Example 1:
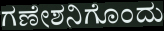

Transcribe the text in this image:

ಗಣೇಶನಿಗೊಂದು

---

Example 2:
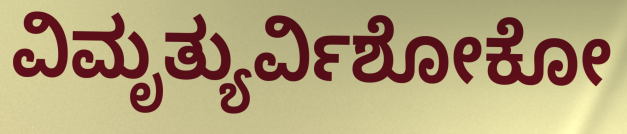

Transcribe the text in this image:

ವಿಮೃತ್ಯುರ್ವಿಶೋಕೋ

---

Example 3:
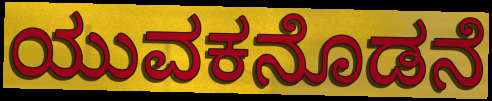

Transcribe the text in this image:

ಯುವಕನೊಡನೆ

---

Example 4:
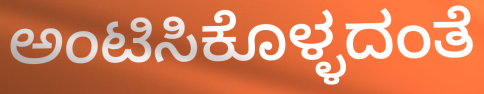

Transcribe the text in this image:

ಅಂಟಿಸಿಕೊಳ್ಳದಂತೆ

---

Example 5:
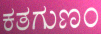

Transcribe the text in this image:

ಕತಗುಣಂ